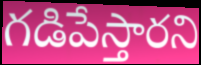
గడిపేస్తారని